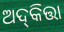
ଅଦ୍‌କିତ୍ତା